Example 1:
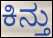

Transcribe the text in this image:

ಕಿನ್ತು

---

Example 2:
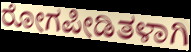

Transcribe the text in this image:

ರೋಗಪೀಡಿತಳಾಗಿ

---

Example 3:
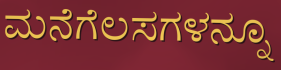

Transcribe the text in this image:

ಮನೆಗೆಲಸಗಳನ್ನೂ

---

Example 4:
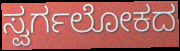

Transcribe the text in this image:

ಸ್ವರ್ಗಲೋಕದ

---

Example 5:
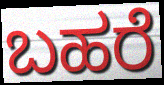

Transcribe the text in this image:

ಬಹರೆ